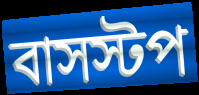
বাসস্টপ